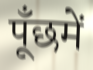
पूँछमें